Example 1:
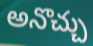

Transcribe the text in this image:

అనొచ్చు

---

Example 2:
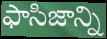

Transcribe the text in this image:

ఫాసిజాన్ని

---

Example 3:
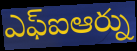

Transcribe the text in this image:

ఎఫ్ఐఆర్ను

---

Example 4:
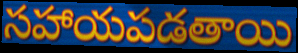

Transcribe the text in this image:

సహాయపడతాయి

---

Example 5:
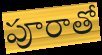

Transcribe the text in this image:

పూరాతో